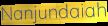
Nanjundaiah